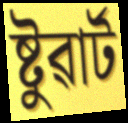
ষ্টুৱাৰ্ট